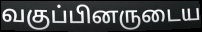
வகுப்பினருடைய